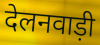
देलनवाड़ी